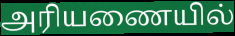
அரியணையில்